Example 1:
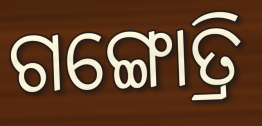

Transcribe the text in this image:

ଗଙ୍ଗୋତ୍ରି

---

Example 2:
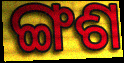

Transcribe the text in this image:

ଙ୍ଗଶ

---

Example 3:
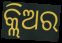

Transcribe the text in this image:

କ୍ଲିଅର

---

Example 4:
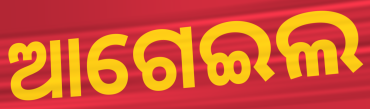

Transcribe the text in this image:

ଆଗେଇଲ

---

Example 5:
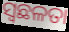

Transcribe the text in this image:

ସ୍ୱଛଳତା